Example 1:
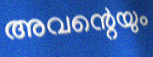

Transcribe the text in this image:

അവന്റെയും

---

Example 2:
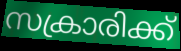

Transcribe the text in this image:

സക്രാരിക്ക്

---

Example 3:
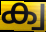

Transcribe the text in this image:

ക്വ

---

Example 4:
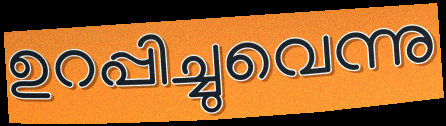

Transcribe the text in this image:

ഉറപ്പിച്ചുവെന്നു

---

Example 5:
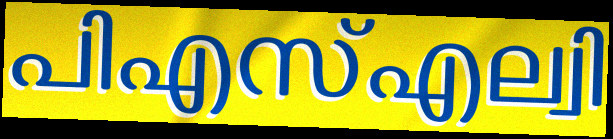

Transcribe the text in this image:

പിഎസ്എല്വി